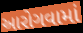
આરોગવામાં